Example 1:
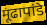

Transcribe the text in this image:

मूंढापांडे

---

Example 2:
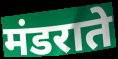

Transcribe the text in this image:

मंडराते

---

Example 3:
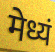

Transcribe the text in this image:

मेध्यं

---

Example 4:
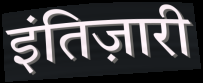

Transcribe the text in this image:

इंतिज़ारी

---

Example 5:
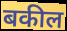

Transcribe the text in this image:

बकील